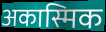
अकास्मिक